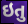
ઇતુ